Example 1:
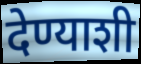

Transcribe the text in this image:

देण्याशी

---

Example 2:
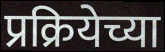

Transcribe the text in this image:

प्रक्रियेच्या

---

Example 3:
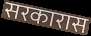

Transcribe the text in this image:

सरकारास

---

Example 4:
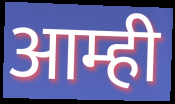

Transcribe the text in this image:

आम्‍ही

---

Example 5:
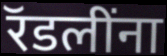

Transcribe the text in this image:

रॅडलींना